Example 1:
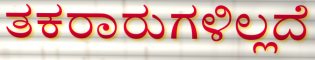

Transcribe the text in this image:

ತಕರಾರುಗಳಿಲ್ಲದೆ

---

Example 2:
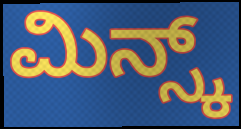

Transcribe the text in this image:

ಮಿನ್ಸ್ಕ್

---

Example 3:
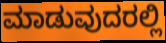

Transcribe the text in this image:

ಮಾಡುವುದರಲ್ಲಿ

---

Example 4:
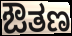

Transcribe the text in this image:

ಔತಣ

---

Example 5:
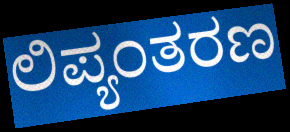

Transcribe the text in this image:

ಲಿಪ್ಯಂತರಣ